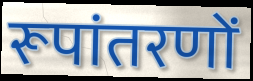
रूपांतरणों